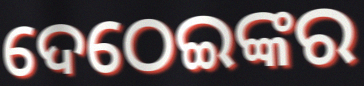
ଦେଠେଇଙ୍କର